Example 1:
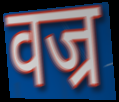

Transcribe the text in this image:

वज्र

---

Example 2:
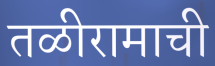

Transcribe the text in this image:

तळीरामाची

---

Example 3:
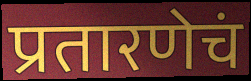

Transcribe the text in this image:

प्रतारणेचं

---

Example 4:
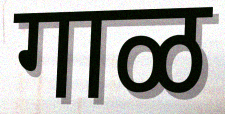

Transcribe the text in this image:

गाळ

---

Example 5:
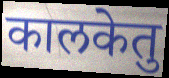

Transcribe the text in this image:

कालकेतु